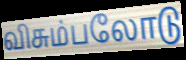
விசும்பலோடு